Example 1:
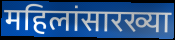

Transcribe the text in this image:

महिलांसारख्या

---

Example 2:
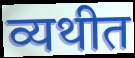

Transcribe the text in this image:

व्यथीत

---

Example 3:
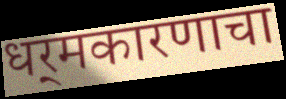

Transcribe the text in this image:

धर्मकारणाचा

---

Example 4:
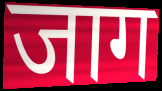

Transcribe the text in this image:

जाग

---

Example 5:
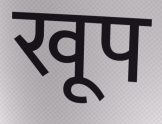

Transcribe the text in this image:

खूप